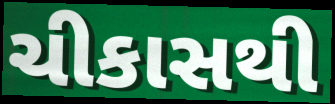
ચીકાસથી